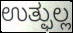
ಉತ್ಫುಲ್ಲ